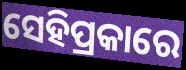
ସେହିପ୍ରକାରେ